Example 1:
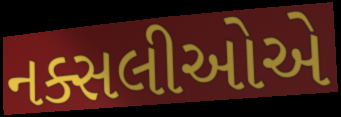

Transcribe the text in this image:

નક્સલીઓએ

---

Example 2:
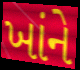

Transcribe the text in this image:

ખાંને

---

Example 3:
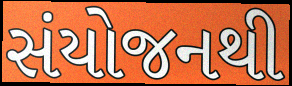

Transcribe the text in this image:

સંયોજનથી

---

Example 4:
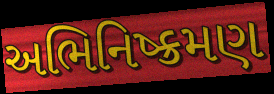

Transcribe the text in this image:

અભિનિષ્ક્રમણ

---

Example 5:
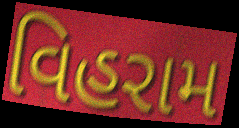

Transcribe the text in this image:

વિહરામ